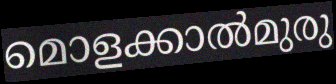
മൊളക്കാൽമുരു